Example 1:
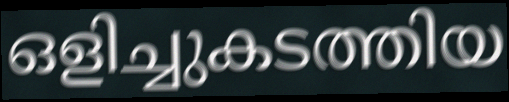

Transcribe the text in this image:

ഒളിച്ചുകടത്തിയ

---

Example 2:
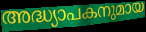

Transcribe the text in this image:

അദ്ധ്യാപകനുമായ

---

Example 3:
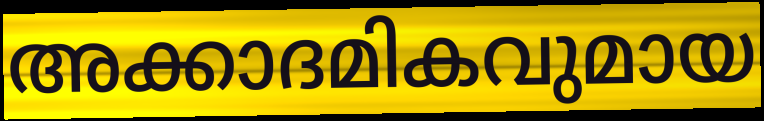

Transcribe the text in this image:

അക്കാദമികവുമായ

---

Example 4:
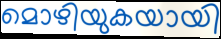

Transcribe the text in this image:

മൊഴിയുകയായി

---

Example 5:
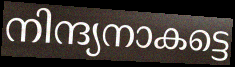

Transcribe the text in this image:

നിന്ദ്യനാകട്ടെ